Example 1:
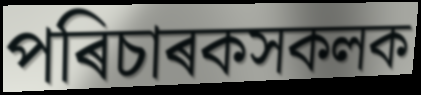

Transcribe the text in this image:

পৰিচাৰকসকলক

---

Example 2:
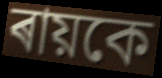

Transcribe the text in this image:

ৰায়কে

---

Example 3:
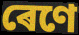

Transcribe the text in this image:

ৰেণে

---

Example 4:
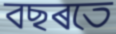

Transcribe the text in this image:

বছৰতে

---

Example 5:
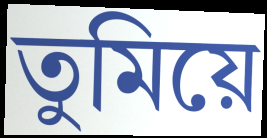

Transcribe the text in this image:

তুমিয়ে